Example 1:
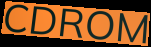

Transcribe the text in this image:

CDROM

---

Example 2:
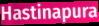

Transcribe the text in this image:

Hastinapura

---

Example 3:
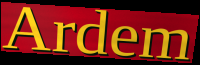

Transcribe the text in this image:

Ardem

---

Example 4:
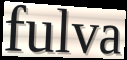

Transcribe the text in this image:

fulva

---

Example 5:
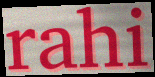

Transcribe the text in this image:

rahi